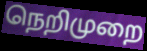
நெறிமுறை